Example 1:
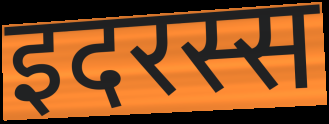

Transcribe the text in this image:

इदरस्स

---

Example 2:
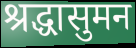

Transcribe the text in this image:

श्रद्धासुमन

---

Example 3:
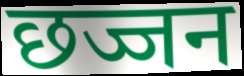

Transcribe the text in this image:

छज्जन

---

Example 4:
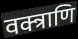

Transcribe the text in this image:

वक्त्राणि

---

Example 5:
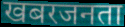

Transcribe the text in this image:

खबरजनता